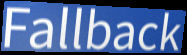
Fallback